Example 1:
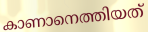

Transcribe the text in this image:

കാണാനെത്തിയത്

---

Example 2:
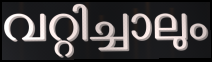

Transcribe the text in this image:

വറ്റിച്ചാലും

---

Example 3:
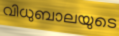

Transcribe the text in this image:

വിധുബാലയുടെ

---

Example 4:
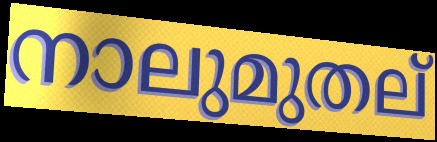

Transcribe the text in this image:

നാലുമുതല്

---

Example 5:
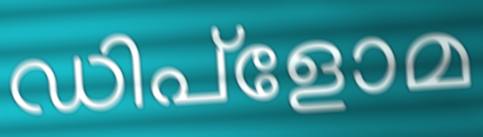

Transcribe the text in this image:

ഡിപ്ളോമ